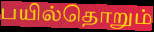
பயில்தொறும்